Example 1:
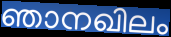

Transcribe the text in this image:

ഞാനഖിലം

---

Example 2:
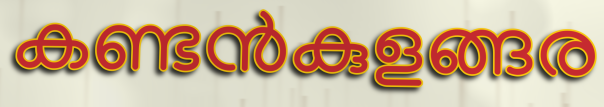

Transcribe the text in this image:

കണ്ടൻകുളങ്ങര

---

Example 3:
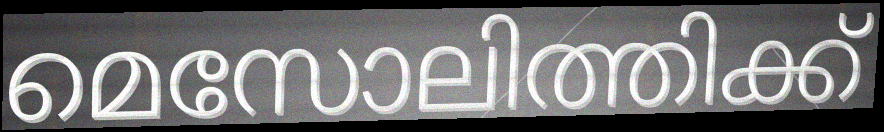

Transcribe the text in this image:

മെസോലിത്തിക്ക്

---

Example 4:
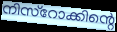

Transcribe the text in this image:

നിസ്റോക്കിന്റെ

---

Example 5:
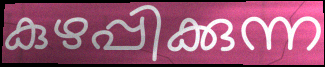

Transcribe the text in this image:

കുഴപ്പിക്കുന്ന